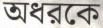
অধরকে